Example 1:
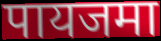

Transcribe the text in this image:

पायजमा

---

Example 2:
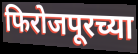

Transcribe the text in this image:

फिरोजपूरच्या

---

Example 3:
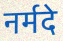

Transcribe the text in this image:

नर्मदे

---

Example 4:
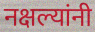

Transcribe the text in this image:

नक्षल्यांनी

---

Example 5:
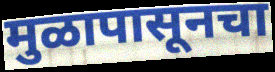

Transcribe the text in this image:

मुळापासूनचा